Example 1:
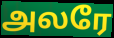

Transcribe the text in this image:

அலரே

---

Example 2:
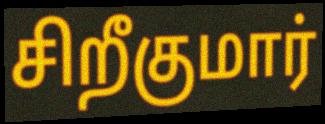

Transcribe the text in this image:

சிறீகுமார்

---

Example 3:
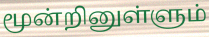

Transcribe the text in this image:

மூன்றினுள்ளும்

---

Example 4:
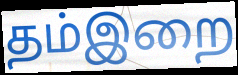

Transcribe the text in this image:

தம்இறை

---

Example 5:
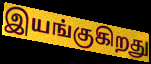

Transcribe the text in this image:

இயங்குகிறது